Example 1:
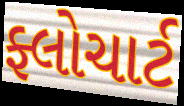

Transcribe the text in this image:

ફ્લોચાર્ટ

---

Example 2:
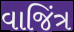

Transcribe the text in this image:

વાજિંત્ર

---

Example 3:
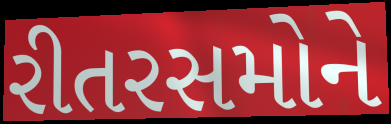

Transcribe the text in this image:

રીતરસમોને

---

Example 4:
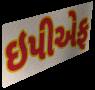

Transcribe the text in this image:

ઇપીએફ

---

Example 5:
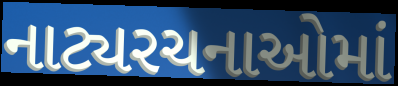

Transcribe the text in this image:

નાટ્યરચનાઓમાં